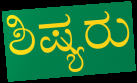
ಶಿಷ್ಯರು